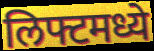
लिफ्टमध्ये